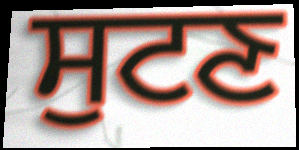
ਸੁਟਣ